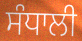
ਸੰਧਾਲੀ